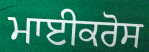
ਮਾਈਕਰੋਸ